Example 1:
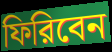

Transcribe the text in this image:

ফিরিবেন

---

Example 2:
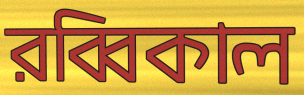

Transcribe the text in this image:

রব্বিকাল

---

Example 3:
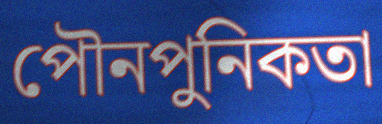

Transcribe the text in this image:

পৌনপুনিকতা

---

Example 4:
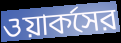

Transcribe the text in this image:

ওয়ার্কসের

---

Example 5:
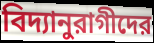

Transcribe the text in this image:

বিদ্যানুরাগীদের